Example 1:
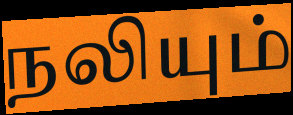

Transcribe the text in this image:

நலியும்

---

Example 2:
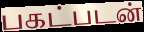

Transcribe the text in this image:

பகட்படன்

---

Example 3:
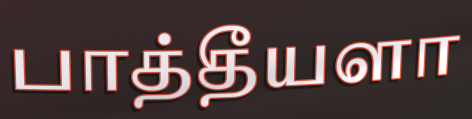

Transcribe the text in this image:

பாத்தீயளா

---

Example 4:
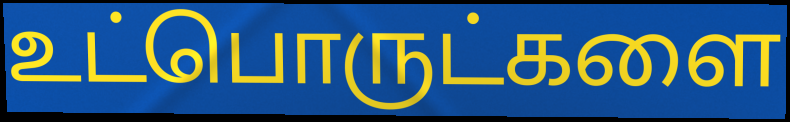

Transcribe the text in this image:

உட்பொருட்களை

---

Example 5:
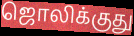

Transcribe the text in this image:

ஜொலிக்குது